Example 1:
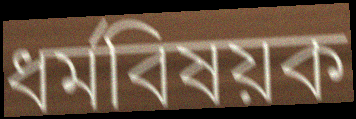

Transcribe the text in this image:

ধর্মবিষয়ক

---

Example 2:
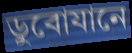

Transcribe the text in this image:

ডুবোযানে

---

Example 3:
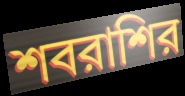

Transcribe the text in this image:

শবরাশির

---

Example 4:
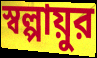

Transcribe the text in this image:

স্বল্পায়ুর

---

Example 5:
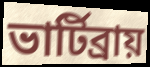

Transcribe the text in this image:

ভার্টিব্রায়